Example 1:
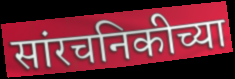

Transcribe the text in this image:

सांरचनिकीच्या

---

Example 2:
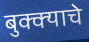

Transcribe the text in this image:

बुक्क्याचे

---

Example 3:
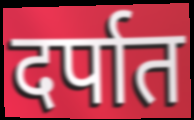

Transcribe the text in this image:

दर्पात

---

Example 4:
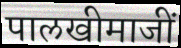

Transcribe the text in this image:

पालखीमाजीं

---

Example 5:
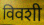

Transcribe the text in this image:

विवशी